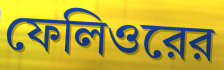
ফেলিওরের